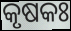
କୃଷକଃ